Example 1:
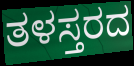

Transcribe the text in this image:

ತಳಸ್ತರದ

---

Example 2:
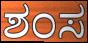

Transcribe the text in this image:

ಶಂಸ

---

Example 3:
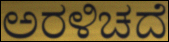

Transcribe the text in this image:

ಅರಳಿಚದೆ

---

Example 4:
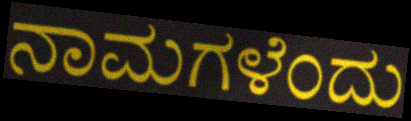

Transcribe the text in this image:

ನಾಮಗಳೆಂದು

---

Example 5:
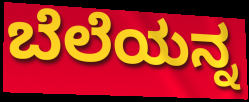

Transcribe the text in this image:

ಬೆಲೆಯನ್ನ